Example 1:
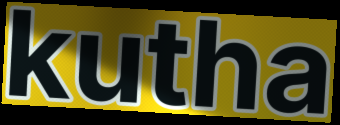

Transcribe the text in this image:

kutha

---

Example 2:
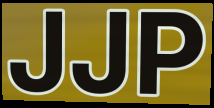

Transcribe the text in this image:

JJP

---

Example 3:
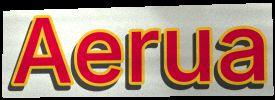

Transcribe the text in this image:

Aerua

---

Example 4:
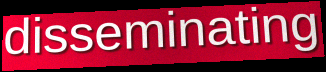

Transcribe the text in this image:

disseminating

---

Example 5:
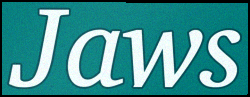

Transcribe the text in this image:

Jaws